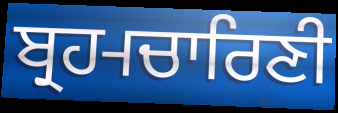
ਬ੍ਰਹ੍ਮਚਾਰਿਣੀ